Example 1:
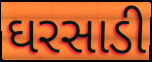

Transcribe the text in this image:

ઘરસાડી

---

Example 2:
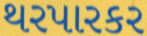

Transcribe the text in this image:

થરપારકર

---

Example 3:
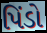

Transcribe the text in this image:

પિંડો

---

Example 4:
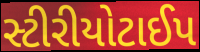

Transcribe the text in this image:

સ્ટીરીયોટાઈપ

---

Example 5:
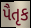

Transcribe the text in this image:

પૈતૃક